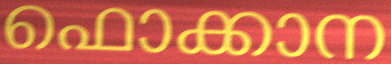
ഫൊക്കാന